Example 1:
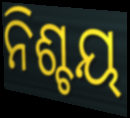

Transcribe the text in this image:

ନିଶ୍ଚୟ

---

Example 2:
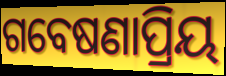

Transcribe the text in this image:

ଗବେଷଣାପ୍ରିୟ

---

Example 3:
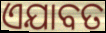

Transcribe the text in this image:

ଏଯାବତ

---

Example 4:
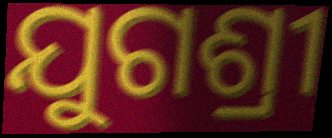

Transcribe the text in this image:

ଯୁଗଶ୍ରୀ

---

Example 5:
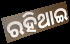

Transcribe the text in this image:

ରହିଥାଇ